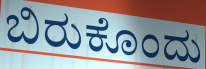
ಬಿರುಕೊಂದು